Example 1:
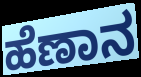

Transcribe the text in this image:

ಹೆಣಾನ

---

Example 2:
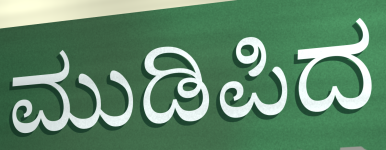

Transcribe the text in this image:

ಮುಡಿಪಿದ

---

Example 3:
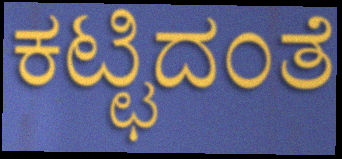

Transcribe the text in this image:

ಕಟ್ಟಿದಂತೆ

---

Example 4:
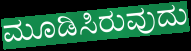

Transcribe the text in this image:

ಮೂಡಿಸಿರುವುದು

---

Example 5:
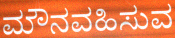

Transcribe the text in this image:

ಮೌನವಹಿಸುವ